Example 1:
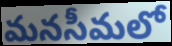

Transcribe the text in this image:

మనసీమలో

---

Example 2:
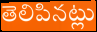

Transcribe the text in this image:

తెలిపినట్లు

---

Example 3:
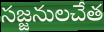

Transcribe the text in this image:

సజ్జనులచేత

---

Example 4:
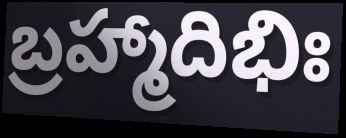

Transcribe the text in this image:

బ్రహ్మాదిభిః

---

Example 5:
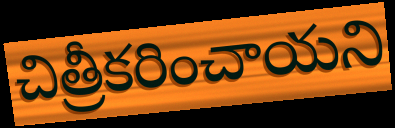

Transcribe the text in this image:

చిత్రీకరించాయని